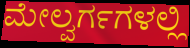
ಮೇಲ್ವರ್ಗಗಳಲ್ಲಿ